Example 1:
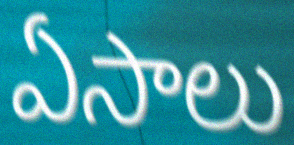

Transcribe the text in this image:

ఏసాలు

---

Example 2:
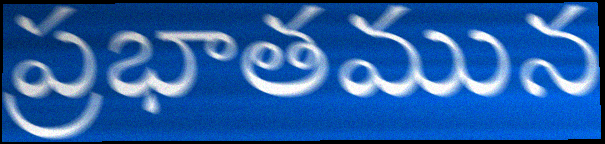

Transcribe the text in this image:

ప్రభాతమున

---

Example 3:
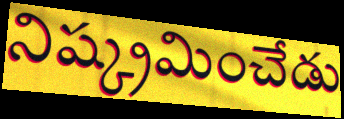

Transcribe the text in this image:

నిష్క్రమించేడు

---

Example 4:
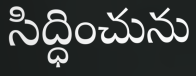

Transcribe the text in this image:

సిద్ధించును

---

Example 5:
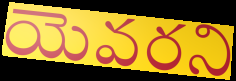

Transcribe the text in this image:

యెవరని